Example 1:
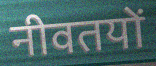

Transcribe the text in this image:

नीवतयों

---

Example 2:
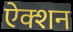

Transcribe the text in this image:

ऐक्‍शन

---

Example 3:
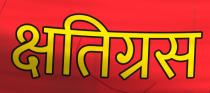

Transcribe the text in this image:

क्षतिग्रस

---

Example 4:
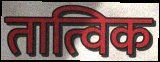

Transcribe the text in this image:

तात्विक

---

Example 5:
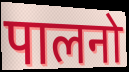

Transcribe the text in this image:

पालनो